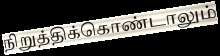
நிறுத்திக்கொண்டாலும்